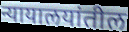
न्यायालयांतील